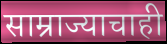
साम्राज्याचाही